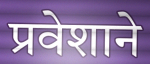
प्रवेशाने